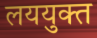
लययुक्त